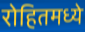
रोहितमध्ये